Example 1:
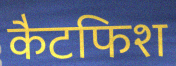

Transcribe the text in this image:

कैटफिश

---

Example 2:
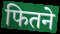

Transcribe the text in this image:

फितने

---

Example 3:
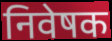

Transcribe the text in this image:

निवेषक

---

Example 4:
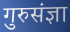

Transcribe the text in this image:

गुरुसंज्ञा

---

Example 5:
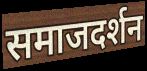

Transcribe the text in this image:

समाजदर्शन